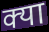
क्‍या